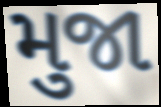
મુજા